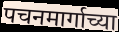
पचनमार्गाच्या